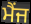
ਮੈਂਜ